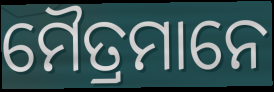
ମୈତ୍ରମାନେ